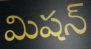
మిషన్